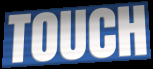
TOUCH